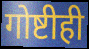
गोष्टीही